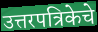
उत्तरपत्रिकेचे